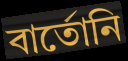
বার্তোনি